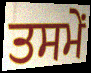
ਤਸਮੇਂ